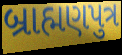
બ્રાહ્મણપુત્ર